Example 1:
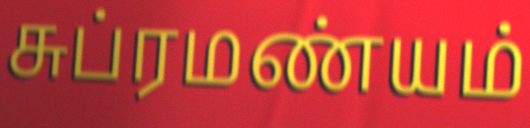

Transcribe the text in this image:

சுப்ரமண்யம்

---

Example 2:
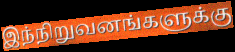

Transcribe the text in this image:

இந்நிறுவனங்களுக்கு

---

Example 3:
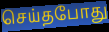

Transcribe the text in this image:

செய்தபோது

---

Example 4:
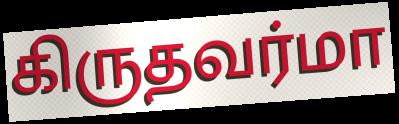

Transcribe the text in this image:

கிருதவர்மா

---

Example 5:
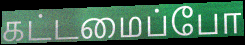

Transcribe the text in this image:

கட்டமைப்போ